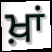
ਖ਼ਾਂ